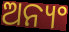
ଅନ୍ୟଂ